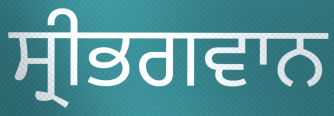
ਸ੍ਰੀਭਗਵਾਨ